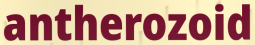
antherozoid